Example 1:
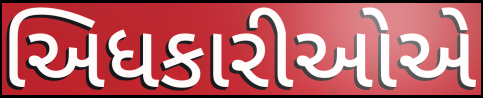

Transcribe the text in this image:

અિધકારીઓએ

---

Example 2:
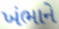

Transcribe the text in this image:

ખંભાને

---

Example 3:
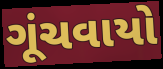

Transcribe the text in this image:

ગૂંચવાયો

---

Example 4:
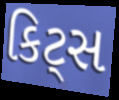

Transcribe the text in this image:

કિટ્સ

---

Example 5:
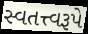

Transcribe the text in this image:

સ્વતત્ત્વરૂપે